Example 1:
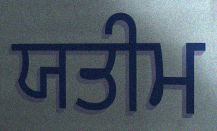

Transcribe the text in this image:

ਯਤੀਮ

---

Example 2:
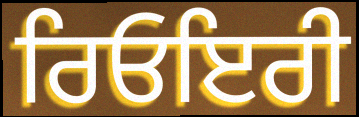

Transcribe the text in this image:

ਰਿਓਇਰੀ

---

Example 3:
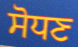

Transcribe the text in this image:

ਸੋਧਣ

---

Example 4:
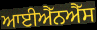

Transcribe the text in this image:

ਆਈਐੱਨਐੱਸ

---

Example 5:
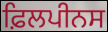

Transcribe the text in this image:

ਫ਼ਿਲਪੀਨਸ